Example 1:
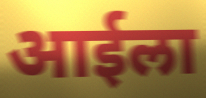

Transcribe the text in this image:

आईला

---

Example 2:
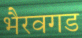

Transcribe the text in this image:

भैरवगड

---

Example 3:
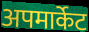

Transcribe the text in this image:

अपमार्केट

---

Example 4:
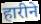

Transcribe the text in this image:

हारीने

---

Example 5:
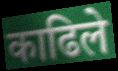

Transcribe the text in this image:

काढिले